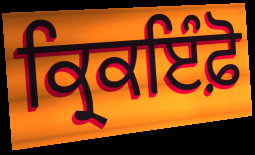
ਕ੍ਰਿਕਇੰਫ਼ੋ